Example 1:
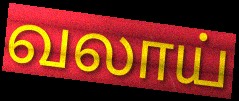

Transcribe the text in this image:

வலாய்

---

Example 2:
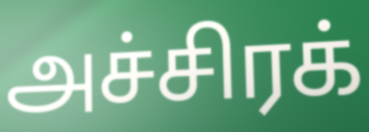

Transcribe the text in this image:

அச்சிரக்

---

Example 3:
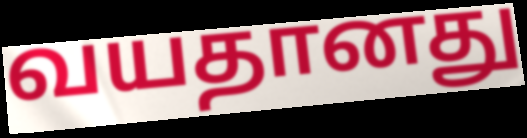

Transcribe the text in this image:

வயதானது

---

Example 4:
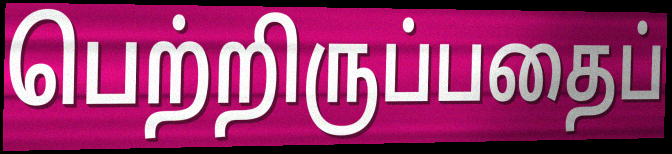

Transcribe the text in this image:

பெற்றிருப்பதைப்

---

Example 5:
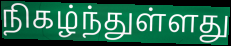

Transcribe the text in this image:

நிகழ்ந்துள்ளது